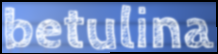
betulina